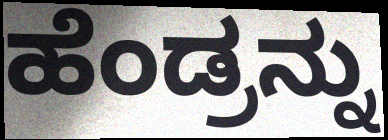
ಹೆಂಡ್ರನ್ನು